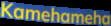
Kamehameha